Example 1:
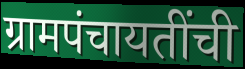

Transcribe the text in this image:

ग्रामपंचायतींची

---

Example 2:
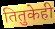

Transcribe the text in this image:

तितुकेही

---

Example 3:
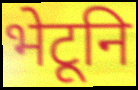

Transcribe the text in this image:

भेटूनि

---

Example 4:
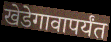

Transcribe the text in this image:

खेडेगावापर्यंत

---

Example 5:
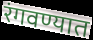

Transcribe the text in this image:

रंगवण्यात